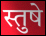
स्तुषे